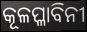
କୂଳପ୍ଳାବିନୀ